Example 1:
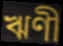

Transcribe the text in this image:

ঋণী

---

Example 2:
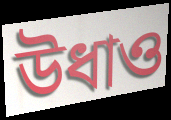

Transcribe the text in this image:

উধাও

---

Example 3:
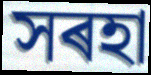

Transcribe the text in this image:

সৰহা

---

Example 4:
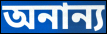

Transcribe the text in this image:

অনান্য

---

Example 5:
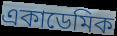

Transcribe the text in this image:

একাডেমিক